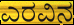
ಎರವಿನ